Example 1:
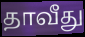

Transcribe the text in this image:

தாவீது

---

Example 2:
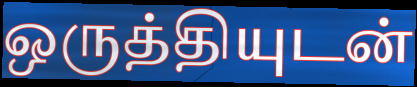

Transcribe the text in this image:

ஒருத்தியுடன்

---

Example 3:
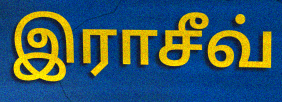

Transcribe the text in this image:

இராசீவ்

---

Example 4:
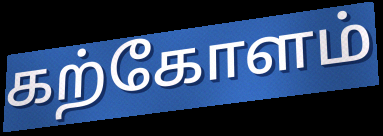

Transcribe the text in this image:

கற்கோளம்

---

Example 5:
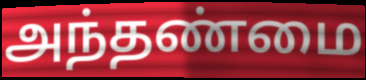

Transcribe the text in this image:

அந்தண்மை